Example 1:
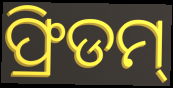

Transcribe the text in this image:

ଫ୍ରିଡମ୍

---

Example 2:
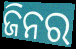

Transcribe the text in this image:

ଜିନର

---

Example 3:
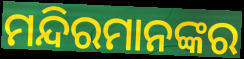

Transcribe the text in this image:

ମନ୍ଦିରମାନଙ୍କର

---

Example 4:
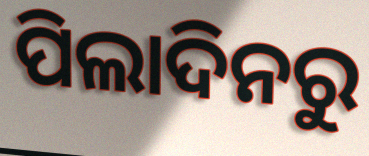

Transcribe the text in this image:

ପିଲାଦିନରୁ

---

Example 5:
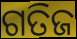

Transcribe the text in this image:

ଗତିଜ